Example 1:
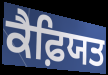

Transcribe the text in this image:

ਕੈਫ਼ਿਯਤ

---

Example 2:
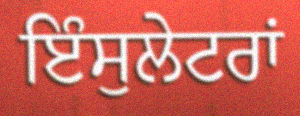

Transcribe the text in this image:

ਇੰਸੁਲੇਟਰਾਂ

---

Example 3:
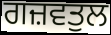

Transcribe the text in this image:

ਗਜ਼ਵਤੁਲ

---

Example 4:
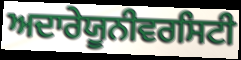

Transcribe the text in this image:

ਅਦਾਰੇਯੂਨੀਵਰਸਿਟੀ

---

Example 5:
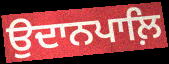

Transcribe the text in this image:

ਉਦਾਨਪਾਲ਼ਿ